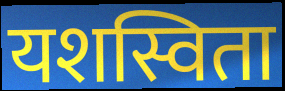
यशस्विता